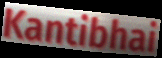
Kantibhai